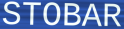
STOBAR